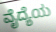
ವೈದ್ಯೆಯ